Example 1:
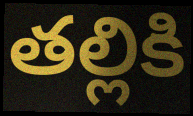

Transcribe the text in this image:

తల్లికి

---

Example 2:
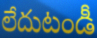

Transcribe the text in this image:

లేదుటండీ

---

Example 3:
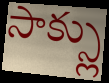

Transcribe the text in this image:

సాక్స్లు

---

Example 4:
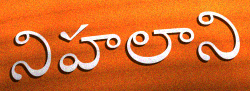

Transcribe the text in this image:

నిహలాని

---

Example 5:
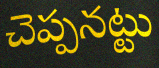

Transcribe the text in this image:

చెప్పనట్టు